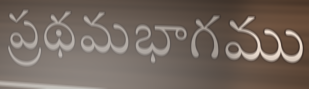
ప్రథమభాగము